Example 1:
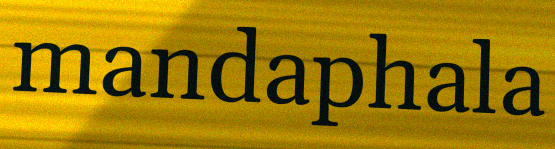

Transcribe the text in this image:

mandaphala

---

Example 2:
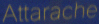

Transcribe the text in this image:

Attarache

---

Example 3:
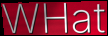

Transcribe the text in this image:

WHat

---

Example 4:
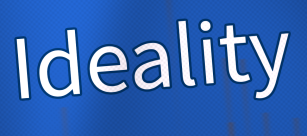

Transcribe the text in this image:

Ideality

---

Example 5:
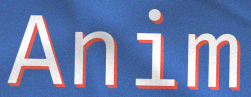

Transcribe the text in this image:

Anim